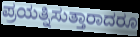
ಪ್ರಯತ್ನಿಸುತ್ತಾರಾದರೂ